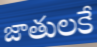
జాతులకే